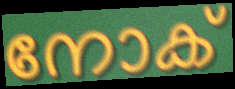
നോക്